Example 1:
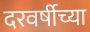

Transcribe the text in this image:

दरवर्षीच्या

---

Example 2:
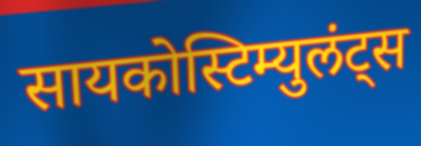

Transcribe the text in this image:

सायकोस्टिम्युलंट्स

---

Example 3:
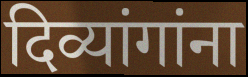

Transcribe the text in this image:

दिव्यांगांना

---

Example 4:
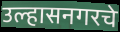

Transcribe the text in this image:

उल्हासनगरचे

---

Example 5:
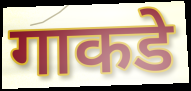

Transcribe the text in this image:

गाकडे